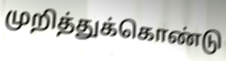
முறித்துக்கொண்டு